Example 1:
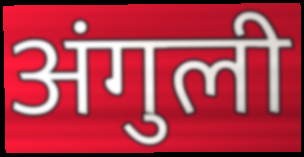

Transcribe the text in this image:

अंगुली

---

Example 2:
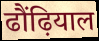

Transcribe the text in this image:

ढौंढ़ियाल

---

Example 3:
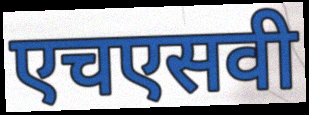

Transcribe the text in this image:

एचएसवी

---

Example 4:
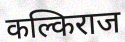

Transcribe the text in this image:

कल्किराज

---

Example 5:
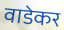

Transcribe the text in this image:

वाडेकर